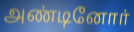
அண்டினோர்